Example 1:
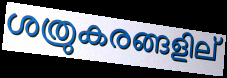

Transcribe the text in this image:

ശത്രുകരങ്ങളില്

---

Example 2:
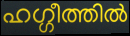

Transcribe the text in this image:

ഹഗ്ഗീത്തിൽ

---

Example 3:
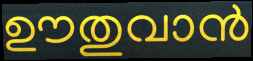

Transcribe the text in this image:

ഊതുവാൻ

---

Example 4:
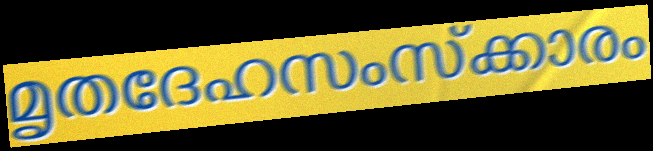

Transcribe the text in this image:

മൃതദേഹസംസ്‌ക്കാരം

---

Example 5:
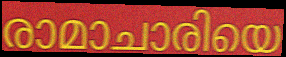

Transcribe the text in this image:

രാമാചാരിയെ